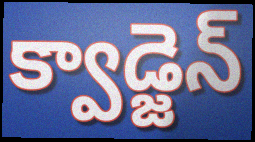
క్వాడ్జెన్